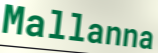
Mallanna